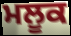
ਮਲੂਕ